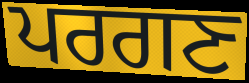
ਪਰਗਣ